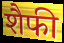
शैफी